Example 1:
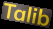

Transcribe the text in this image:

Talib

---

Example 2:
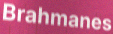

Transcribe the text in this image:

Brahmanes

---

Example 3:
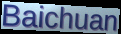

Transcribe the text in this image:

Baichuan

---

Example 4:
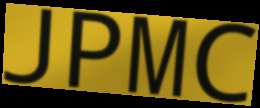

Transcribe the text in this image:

JPMC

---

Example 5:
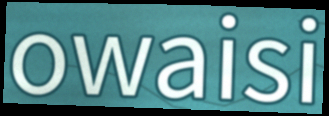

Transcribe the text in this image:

owaisi